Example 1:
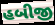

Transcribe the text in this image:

હબીજી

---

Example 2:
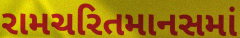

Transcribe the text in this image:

રામચરિતમાનસમાં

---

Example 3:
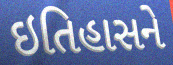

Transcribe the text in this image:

ઇતિહાસને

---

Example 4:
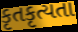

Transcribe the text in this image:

કૃતકૃત્યતા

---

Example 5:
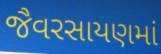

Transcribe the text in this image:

જૈવરસાયણમાં